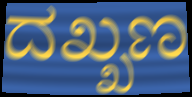
ದಖ್ಖಣ